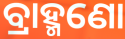
ବ୍ରାହ୍ମଣୋ